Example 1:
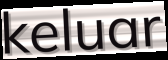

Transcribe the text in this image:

keluar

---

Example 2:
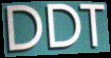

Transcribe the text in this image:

DDT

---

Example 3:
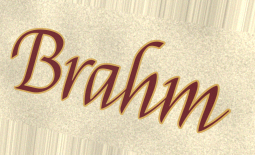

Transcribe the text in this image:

Brahm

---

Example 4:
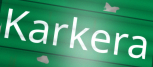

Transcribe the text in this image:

Karkera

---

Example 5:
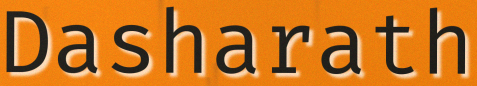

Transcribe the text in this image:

Dasharath